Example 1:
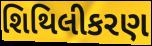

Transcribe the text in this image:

શિથિલીકરણ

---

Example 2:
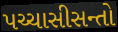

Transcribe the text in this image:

પચ્ચાસીસન્તો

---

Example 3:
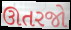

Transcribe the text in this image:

ઊતરજો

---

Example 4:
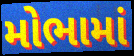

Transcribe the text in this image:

મોભામાં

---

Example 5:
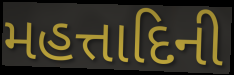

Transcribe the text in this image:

મહત્તાદિની